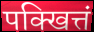
पक्खित्तं